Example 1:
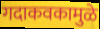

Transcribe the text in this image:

गदाकवकामुळे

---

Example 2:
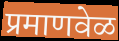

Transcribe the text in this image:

प्रमाणवेळ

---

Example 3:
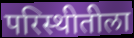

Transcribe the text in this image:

परिस्थीतीला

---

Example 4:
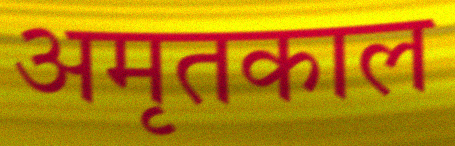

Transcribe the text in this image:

अमृतकाल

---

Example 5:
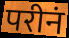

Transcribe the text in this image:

परीनं